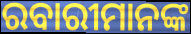
ରବାରୀମାନଙ୍କ